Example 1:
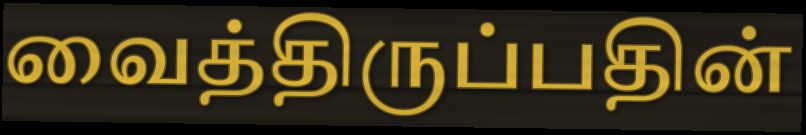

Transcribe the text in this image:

வைத்திருப்பதின்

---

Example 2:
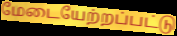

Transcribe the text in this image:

மேடையேற்றப்பட்டு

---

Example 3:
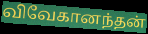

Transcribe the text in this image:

விவேகானந்தன்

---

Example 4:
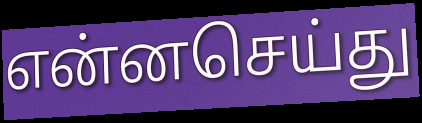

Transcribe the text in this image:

என்னசெய்து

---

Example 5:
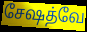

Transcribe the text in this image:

சேஷத்வே